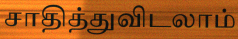
சாதித்துவிடலாம்